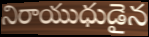
నిరాయుధుడైన